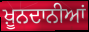
ਖ਼ੂਨਦਾਨੀਆਂ